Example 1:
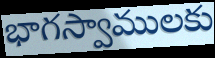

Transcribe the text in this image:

భాగస్వాములకు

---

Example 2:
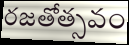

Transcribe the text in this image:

రజతోత్సవం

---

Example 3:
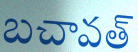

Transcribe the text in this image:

బచావత్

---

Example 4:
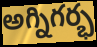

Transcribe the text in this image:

అగ్నిగర్భ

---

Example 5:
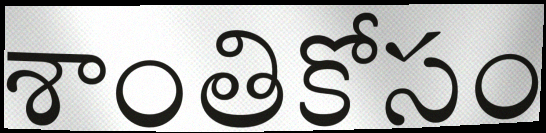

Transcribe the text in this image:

శాంతికోసం